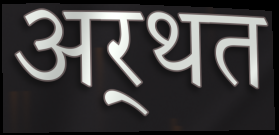
अर्थत